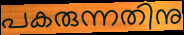
പകരുന്നതിനു